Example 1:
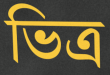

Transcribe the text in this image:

ভিত্র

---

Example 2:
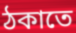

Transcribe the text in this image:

ঠকাতে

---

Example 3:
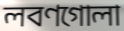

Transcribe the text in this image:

লবণগোলা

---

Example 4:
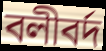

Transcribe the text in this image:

বলীবর্দ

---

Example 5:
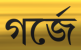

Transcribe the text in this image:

গর্জে